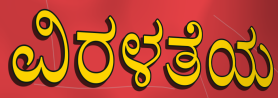
ವಿರಳತೆಯ